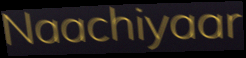
Naachiyaar